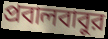
প্রবালবাবুর